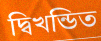
দ্বিখন্ডিত